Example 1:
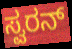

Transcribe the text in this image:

ಸ್ವರನ್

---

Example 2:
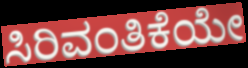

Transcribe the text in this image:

ಸಿರಿವಂತಿಕೆಯೇ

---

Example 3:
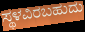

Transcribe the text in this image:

ಸ್ಥಳವಿರಬಹುದು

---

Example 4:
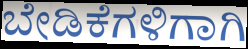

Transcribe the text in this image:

ಬೇಡಿಕೆಗಳಿಗಾಗಿ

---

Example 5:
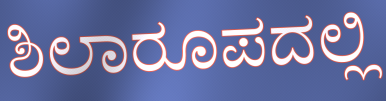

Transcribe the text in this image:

ಶಿಲಾರೂಪದಲ್ಲಿ